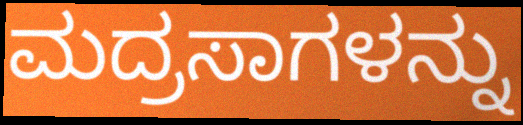
ಮದ್ರಸಾಗಳನ್ನು